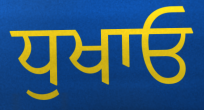
ਧੁਖਾਓ